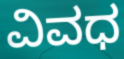
ವಿವಧ